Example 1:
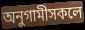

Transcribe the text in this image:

অনুগামীসকলে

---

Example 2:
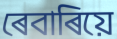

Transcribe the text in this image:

ৰেবাৰিয়ে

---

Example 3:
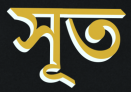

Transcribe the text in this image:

সূত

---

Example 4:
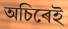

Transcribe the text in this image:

অচিৰেই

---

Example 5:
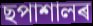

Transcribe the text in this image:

ছপাশালৰ